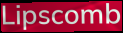
Lipscomb